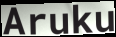
Aruku